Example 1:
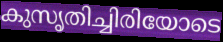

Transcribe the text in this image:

കുസൃതിച്ചിരിയോടെ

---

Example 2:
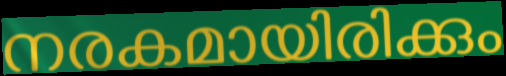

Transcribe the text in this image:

നരകമായിരിക്കും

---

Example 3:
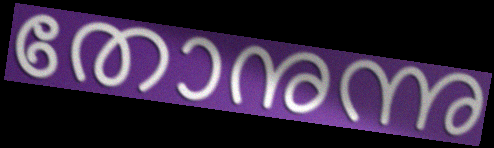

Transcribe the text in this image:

തോനുന്നു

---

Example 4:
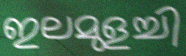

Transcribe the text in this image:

ഇലമുളച്ചി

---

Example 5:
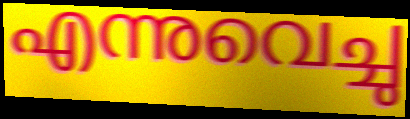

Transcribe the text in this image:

എന്നുവെച്ചു